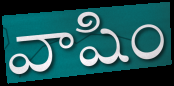
వాషిం